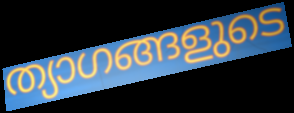
ത്യാഗങ്ങളുടെ